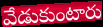
వేడుకుంటారు